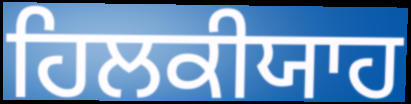
ਹਿਲਕੀਯਾਹ